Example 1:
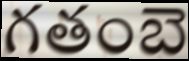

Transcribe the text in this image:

గతంబె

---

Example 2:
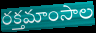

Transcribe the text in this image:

రక్తమాంసాల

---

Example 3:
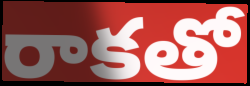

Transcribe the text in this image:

రాకతో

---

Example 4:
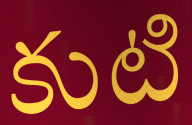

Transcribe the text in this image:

కుటి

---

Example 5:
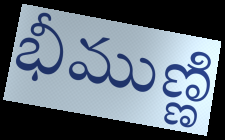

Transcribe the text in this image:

భీముణ్ణి